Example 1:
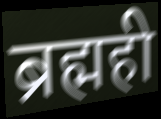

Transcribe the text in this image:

ब्रह्मही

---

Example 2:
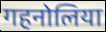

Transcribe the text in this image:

गहनोलिया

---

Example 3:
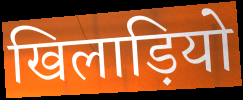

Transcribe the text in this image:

खिलाड़ियो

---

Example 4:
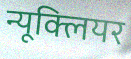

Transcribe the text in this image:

न्‍यूक्लियर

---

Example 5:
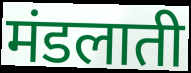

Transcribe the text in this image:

मंडलाती